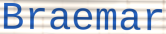
Braemar